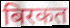
बिरकत